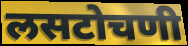
लसटोचणी